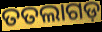
ତତଲାଗଡ଼